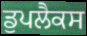
ਡੁਪਲੈਕਸ